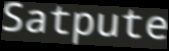
Satpute